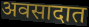
अवसादात